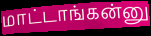
மாட்டாங்கன்னு